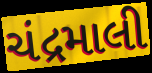
ચંદ્રમાલી